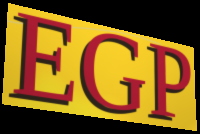
EGP